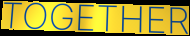
TOGETHER